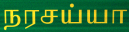
நரசய்யா